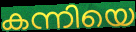
കന്നിയെ